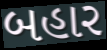
બહાર